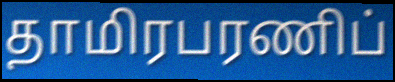
தாமிரபரணிப்